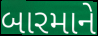
બારમાને